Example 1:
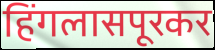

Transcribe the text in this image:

हिंगलासपूरकर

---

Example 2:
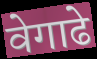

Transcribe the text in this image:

वेगाढे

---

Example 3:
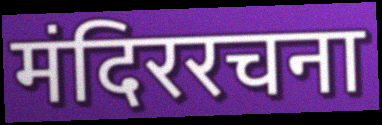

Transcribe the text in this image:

मंदिररचना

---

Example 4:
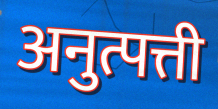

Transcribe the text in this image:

अनुत्पत्ती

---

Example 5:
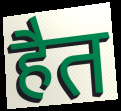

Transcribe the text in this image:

हैत